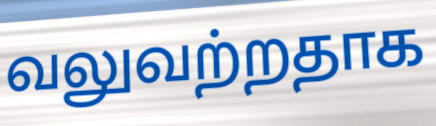
வலுவற்றதாக